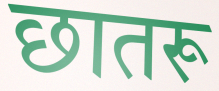
छातरू